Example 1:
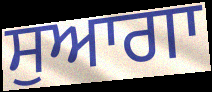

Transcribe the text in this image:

ਸੁਆਗਾ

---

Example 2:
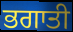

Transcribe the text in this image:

ਭਗਾਤੀ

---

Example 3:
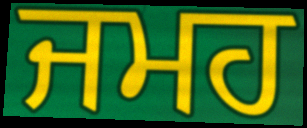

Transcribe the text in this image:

ਜਮਹ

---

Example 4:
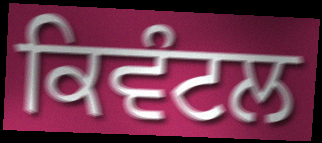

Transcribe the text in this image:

ਕਿਵੰਟਲ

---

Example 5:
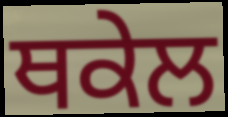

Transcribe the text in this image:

ਥਕੇਲ